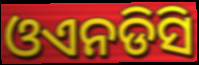
ଓଏନଡିସି